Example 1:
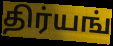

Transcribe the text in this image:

திர்யங்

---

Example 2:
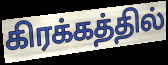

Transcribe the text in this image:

கிரக்கத்தில்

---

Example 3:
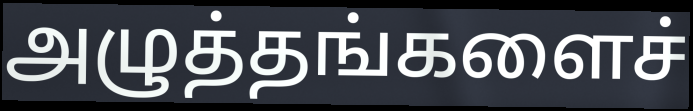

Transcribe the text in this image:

அழுத்தங்களைச்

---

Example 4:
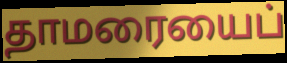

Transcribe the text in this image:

தாமரையைப்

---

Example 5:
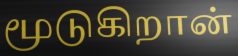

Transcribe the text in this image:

மூடுகிறான்